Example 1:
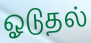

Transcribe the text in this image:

ஓடுதல்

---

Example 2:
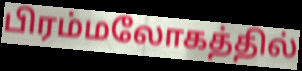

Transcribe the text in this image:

பிரம்மலோகத்தில்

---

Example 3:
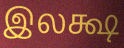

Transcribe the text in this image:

இலக்ஷ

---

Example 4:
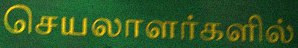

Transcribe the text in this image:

செயலாளர்களில்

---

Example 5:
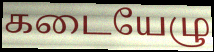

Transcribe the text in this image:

கடையேழு